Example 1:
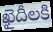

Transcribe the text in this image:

ఖైదీలకి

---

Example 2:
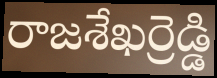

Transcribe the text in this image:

రాజశేఖర్రెడ్డి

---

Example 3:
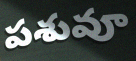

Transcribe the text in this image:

పశువూ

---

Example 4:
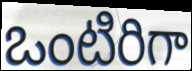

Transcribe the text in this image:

ఒంటిరిగా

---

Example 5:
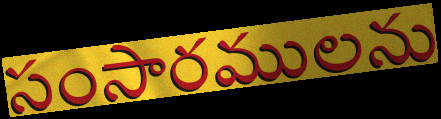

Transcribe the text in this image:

సంసారములను